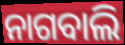
ନାଗବାଲି